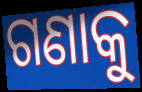
ଗଣାକୁ